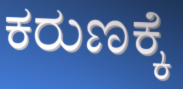
ಕರುಣಕ್ಕೆ